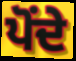
ਪੋਂਦੇ